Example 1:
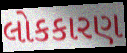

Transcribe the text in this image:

લોકકારણ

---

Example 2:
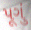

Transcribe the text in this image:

પૂગું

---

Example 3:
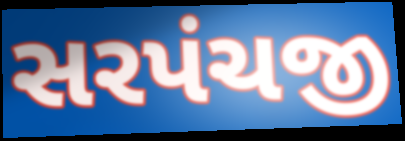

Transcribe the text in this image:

સરપંચજી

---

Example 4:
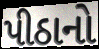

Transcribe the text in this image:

પીઠાનો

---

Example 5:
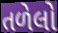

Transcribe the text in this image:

તળેલો